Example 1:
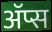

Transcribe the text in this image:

ॲप्स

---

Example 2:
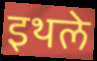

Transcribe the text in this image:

इथले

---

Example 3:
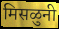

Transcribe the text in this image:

मिसळुनी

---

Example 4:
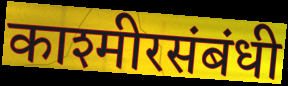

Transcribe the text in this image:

काश्मीरसंबंधी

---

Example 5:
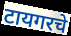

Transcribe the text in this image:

टायगरचे